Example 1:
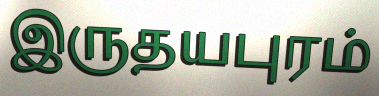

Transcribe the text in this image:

இருதயபுரம்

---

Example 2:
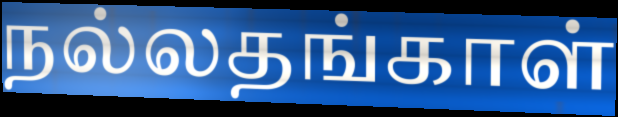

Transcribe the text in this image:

நல்லதங்காள்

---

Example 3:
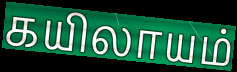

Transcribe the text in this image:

கயிலாயம்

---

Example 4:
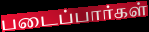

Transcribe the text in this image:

படைப்பார்கள்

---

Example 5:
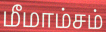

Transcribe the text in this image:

மீமாம்சம்